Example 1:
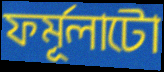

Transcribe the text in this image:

ফৰ্মূলাটো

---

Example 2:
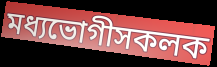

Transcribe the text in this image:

মধ্যভোগীসকলক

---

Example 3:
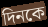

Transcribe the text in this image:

দিনকে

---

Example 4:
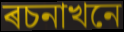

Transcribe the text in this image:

ৰচনাখনে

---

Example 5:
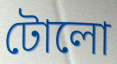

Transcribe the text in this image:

টোলো